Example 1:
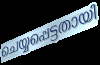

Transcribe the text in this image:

ചെയ്യപ്പെട്ടതായി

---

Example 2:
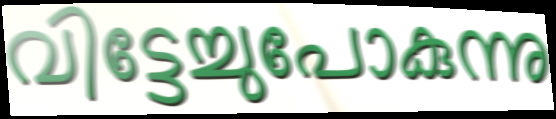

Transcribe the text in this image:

വിട്ടേച്ചുപോകുന്നു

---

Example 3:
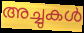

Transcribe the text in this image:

അച്ചുകൾ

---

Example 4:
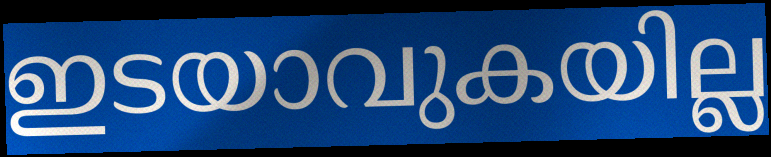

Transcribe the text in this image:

ഇടയാവുകയില്ല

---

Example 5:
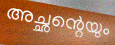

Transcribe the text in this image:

അച്ഛന്റെയും